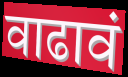
वाढावं